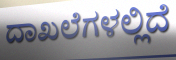
ದಾಖಲೆಗಳಲ್ಲಿದೆ